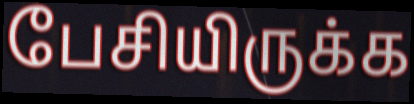
பேசியிருக்க